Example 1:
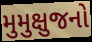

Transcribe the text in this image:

મુમુક્ષુજનો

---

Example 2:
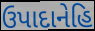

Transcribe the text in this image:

ઉપાદાનેહિ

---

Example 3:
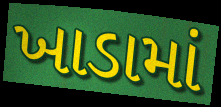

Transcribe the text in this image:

ખાડામાં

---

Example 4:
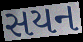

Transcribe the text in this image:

સયન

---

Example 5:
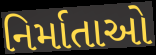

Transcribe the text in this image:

નિર્માતાઓ